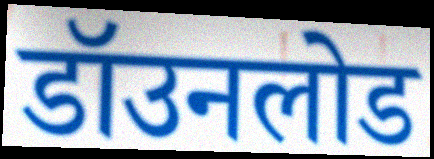
डॉउनलोड